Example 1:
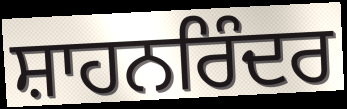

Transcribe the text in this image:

ਸ਼ਾਹਨਰਿੰਦਰ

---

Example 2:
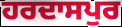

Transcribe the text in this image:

ਹਰਦਾਸਪੁਰ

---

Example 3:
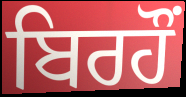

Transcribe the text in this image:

ਬਿਰਹੌਂ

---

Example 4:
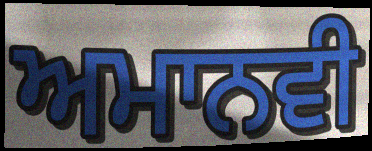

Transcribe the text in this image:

ਅਮਾਨਵੀ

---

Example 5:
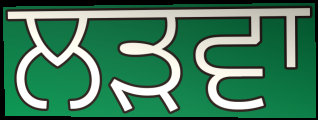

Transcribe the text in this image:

ਲੜਵਾ